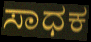
ಸಾಧಕ